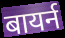
बायर्न